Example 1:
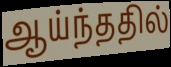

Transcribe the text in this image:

ஆய்ந்ததில்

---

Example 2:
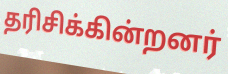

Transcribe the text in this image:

தரிசிக்கின்றனர்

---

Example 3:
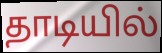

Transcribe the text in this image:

தாடியில்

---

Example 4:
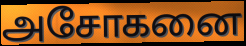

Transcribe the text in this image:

அசோகனை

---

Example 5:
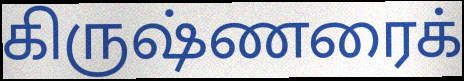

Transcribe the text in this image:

கிருஷ்ணரைக்